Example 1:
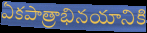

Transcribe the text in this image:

ఏకపాత్రాభినయానికి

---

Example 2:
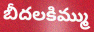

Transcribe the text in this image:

బీదలకిమ్ము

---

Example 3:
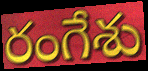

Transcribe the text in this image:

రంగేశు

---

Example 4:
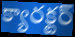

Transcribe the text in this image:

క్యారక్టర్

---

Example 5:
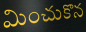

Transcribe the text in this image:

మించుకొన